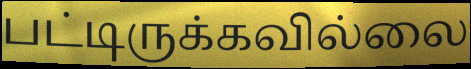
பட்டிருக்கவில்லை